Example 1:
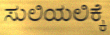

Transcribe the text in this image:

ಸುಲಿಯಲಿಕ್ಕೆ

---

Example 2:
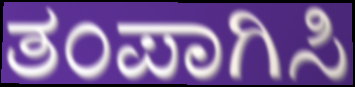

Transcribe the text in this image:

ತಂಪಾಗಿಸಿ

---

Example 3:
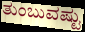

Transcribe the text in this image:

ತುಂಬುವಷ್ಟು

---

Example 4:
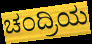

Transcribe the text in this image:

ಚಂದ್ರಿಯ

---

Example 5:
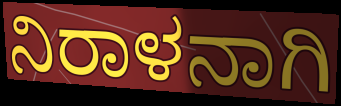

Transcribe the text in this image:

ನಿರಾಳನಾಗಿ